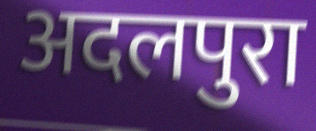
अदलपुरा